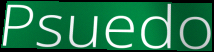
Psuedo